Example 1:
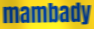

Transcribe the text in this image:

mambady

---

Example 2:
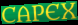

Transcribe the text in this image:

CAPEX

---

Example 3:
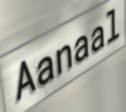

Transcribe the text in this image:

Aanaal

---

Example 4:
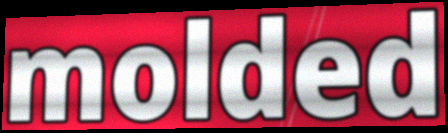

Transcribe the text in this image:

molded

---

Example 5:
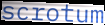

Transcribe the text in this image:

scrotum